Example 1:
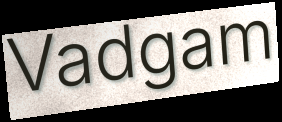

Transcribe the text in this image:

Vadgam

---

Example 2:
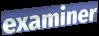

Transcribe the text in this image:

examiner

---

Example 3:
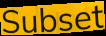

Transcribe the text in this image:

Subset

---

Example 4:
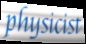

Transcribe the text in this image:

physicist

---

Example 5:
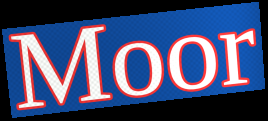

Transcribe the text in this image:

Moor